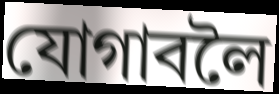
যোগাবলৈ